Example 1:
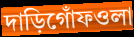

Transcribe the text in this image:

দাড়িগোঁফওলা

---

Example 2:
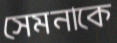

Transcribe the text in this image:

সেমনাকে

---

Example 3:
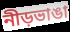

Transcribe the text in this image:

নীড়ভাঙা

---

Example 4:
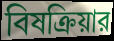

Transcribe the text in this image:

বিষক্রিয়ার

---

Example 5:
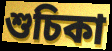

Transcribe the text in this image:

শুচিকা